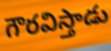
గౌరవిస్తాడు